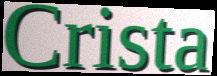
Crista